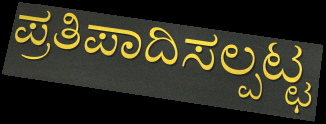
ಪ್ರತಿಪಾದಿಸಲ್ಪಟ್ಟ